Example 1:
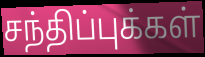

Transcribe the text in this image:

சந்திப்புக்கள்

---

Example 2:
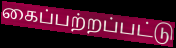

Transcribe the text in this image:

கைப்பற்றப்பட்டு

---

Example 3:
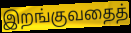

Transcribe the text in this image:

இறங்குவதைத்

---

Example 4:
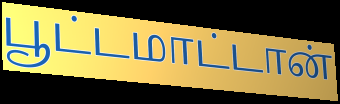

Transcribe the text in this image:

பூட்டமாட்டான்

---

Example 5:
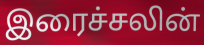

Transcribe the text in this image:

இரைச்சலின்